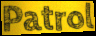
Patrol